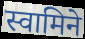
स्वामिने